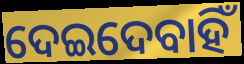
ଦେଇଦେବାହିଁ